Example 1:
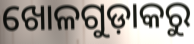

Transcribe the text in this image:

ଖୋଳଗୁଡ଼ାକରୁ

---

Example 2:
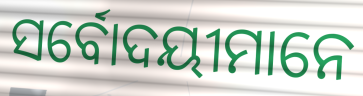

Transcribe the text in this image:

ସର୍ବୋଦୟୀମାନେ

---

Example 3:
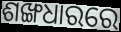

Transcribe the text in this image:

ଶଙ୍ଖଧାରରେ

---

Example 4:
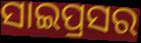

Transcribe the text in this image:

ସାଇପ୍ରସର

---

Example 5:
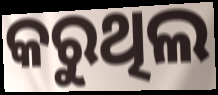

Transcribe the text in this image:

କରୁଥିଲ